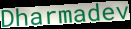
Dharmadev